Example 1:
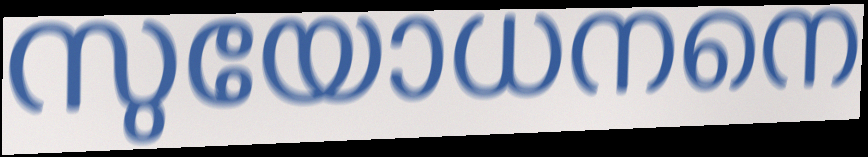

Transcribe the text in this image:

സുയോധനനെ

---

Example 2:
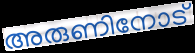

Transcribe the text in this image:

അരുണിനോട്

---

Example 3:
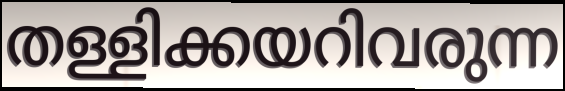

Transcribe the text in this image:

തള്ളിക്കയറിവരുന്ന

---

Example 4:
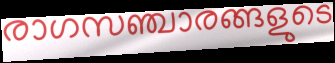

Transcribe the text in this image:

രാഗസഞ്ചാരങ്ങളുടെ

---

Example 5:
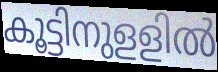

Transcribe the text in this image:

കൂട്ടിനുളളിൽ